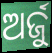
ଅର୍ଜୁ